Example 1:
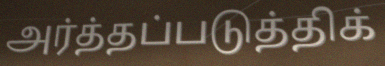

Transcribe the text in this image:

அர்த்தப்படுத்திக்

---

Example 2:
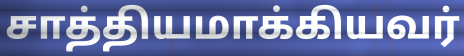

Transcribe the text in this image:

சாத்தியமாக்கியவர்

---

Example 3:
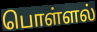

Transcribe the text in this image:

பொள்ளல்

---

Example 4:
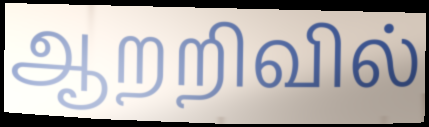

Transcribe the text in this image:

ஆறறிவில்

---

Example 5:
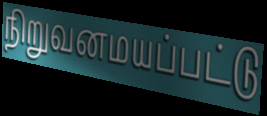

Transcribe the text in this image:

நிறுவனமயப்பட்டு